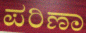
ಪರಿಣಾ